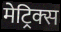
मेट्रिक्‍स